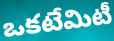
ఒకటేమిటీ